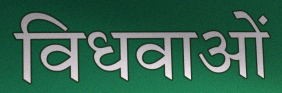
विधवाओं